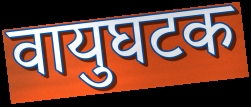
वायुघटक